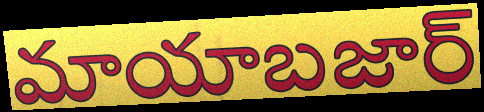
మాయాబజార్